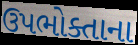
ઉપભોક્તાના